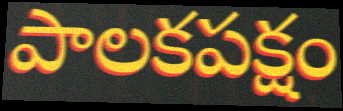
పాలకపక్షం